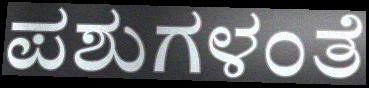
ಪಶುಗಳಂತೆ